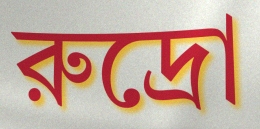
রুদ্রো